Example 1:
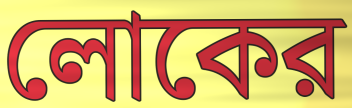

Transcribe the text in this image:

লোকের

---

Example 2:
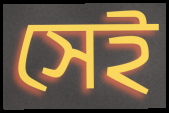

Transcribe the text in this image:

সেই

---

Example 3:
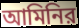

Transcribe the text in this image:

আমিনির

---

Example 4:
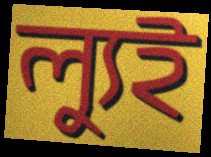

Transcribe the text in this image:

ল্যুই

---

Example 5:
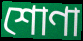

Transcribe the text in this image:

শোণা